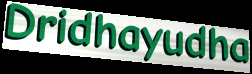
Dridhayudha